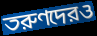
তরুণদেরও